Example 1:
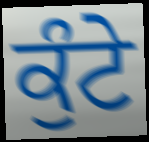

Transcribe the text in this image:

ਕੁੰਟੇ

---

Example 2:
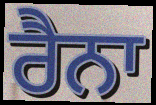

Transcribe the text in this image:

ਰੈਨਾ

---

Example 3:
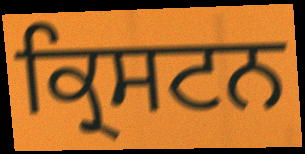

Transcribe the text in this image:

ਕ੍ਰਿਸਟਨ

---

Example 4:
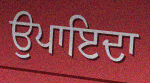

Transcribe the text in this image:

ਉਪਾਇਦਾ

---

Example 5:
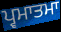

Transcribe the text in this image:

ਪ੍ਵਮਾਤਮਾ